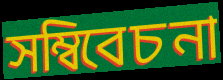
সম্বিবেচনা